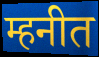
म्हनीत